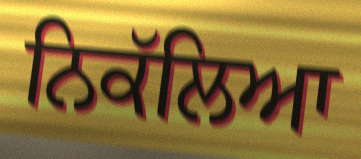
ਨਿਕੱਲਿਆ